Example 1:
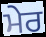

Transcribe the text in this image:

ਮੇਰ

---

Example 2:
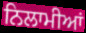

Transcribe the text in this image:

ਨਿਲਾਮੀਆਂ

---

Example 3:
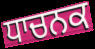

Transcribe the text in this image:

ਧਾਚਨਕ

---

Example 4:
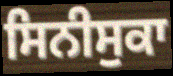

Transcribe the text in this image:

ਸਿਨੀਸੁਕਾ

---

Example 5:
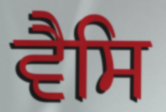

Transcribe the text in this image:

ਵੈਸਿ